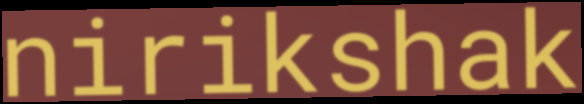
nirikshak